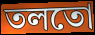
তলতো